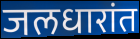
जलधारांत